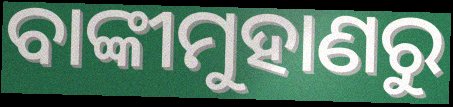
ବାଙ୍କୀମୁହାଣରୁ